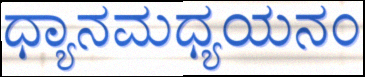
ಧ್ಯಾನಮಧ್ಯಯನಂ